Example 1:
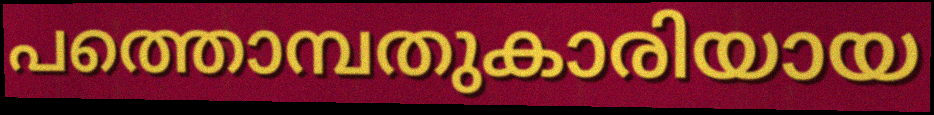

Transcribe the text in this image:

പത്തൊമ്പതുകാരിയായ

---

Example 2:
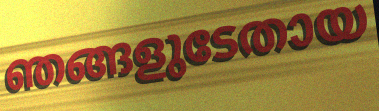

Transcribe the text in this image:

ഞങ്ങളുടേതായ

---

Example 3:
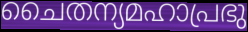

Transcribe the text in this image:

ചൈതന്യമഹാപ്രഭു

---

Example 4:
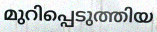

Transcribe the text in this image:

മുറിപ്പെടുത്തിയ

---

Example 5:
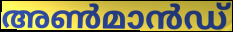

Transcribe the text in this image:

അൺമാൻഡ്